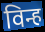
विन्ह